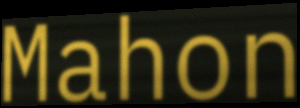
Mahon